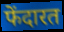
फेंदारत